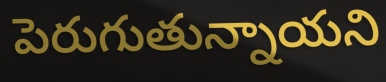
పెరుగుతున్నాయని